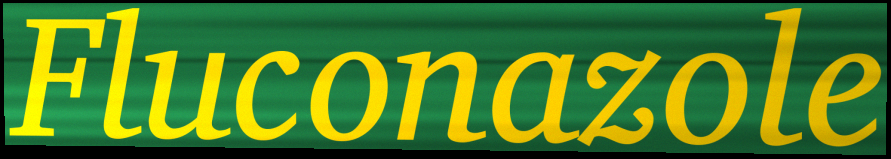
Fluconazole